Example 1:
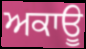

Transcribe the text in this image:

ਅਕਾਊ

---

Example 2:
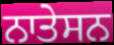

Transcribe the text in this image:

ਨਾਤੇਸਨ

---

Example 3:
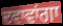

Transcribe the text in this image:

ਦਵਾਵਾਂਗਾ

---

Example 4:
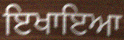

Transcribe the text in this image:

ਇਖਾਇਆ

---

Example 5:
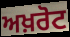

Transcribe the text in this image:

ਅਖ਼ਰੋਟ